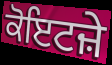
ਕੋਇਟਜ਼ੇ